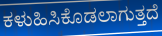
ಕಳುಹಿಸಿಕೊಡಲಾಗುತ್ತದೆ